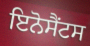
ਇਨੋਸੈਂਟਸ